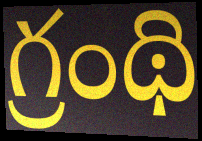
గ్రంథి